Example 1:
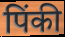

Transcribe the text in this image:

पिंकी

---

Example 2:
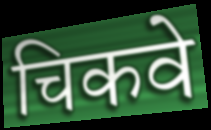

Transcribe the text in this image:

चिकवे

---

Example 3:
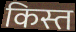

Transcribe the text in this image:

किस्त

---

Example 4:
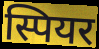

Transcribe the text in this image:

स्पियर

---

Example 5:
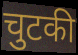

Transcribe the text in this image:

चुटकी